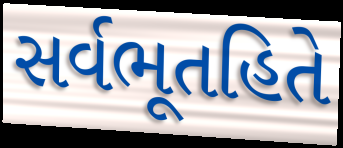
સર્વભૂતહિતે